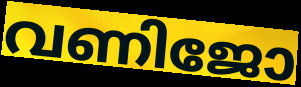
വണിജോ